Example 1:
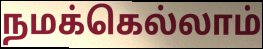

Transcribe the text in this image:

நமக்கெல்லாம்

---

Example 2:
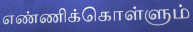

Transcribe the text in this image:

எண்ணிக்கொள்ளும்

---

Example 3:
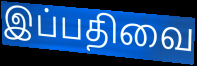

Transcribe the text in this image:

இப்பதிவை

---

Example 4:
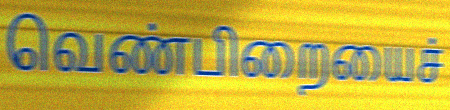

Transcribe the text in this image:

வெண்பிறையைச்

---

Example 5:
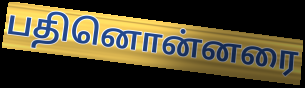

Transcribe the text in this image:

பதினொன்னரை